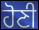
ਹੋਣੀ